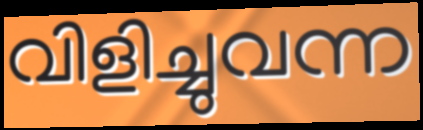
വിളിച്ചുവന്ന